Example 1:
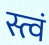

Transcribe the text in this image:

स्त्वं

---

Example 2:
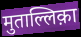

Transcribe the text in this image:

मुताल्लिक़ा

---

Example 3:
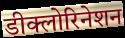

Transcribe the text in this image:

डीक्लोरिनेशन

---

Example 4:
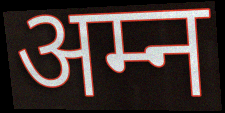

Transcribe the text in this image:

अम्न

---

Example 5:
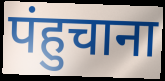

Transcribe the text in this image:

पंहुचाना